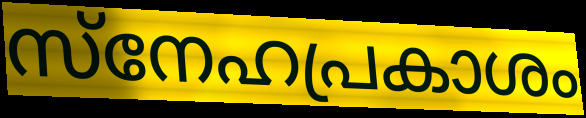
സ്നേഹപ്രകാശം